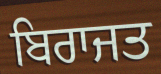
ਬਿਰਾਜਤ